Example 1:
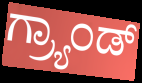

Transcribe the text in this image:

ಗ್ರ್ಯಾಂಡ್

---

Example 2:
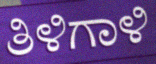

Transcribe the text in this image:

ತಿಳಿಗಾಳಿ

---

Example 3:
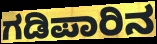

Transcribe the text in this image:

ಗಡಿಪಾರಿನ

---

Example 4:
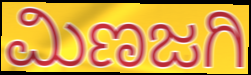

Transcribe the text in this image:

ಮಿಣಜಗಿ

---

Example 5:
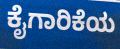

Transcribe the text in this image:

ಕೈಗಾರಿಕೆಯ